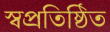
স্বপ্রতিষ্ঠিত